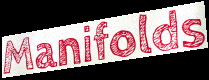
Manifolds